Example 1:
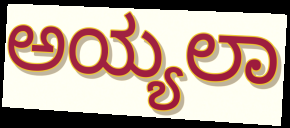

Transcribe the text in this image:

ಅಯ್ಯಲಾ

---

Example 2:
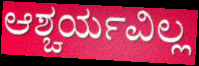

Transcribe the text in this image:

ಆಶ್ಚರ್ಯವಿಲ್ಲ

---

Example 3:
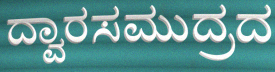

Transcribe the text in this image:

ದ್ವಾರಸಮುದ್ರದ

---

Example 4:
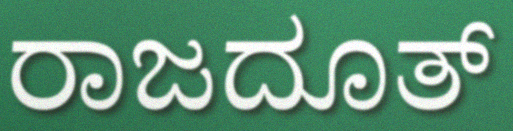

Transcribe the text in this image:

ರಾಜದೂತ್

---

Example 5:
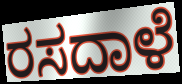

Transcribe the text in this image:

ರಸದಾಳೆ